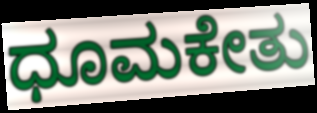
ಧೂಮಕೇತು